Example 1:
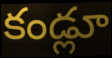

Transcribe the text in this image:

కండ్లూ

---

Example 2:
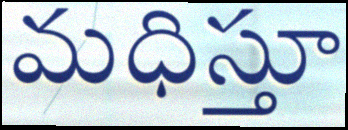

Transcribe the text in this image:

మధిస్తూ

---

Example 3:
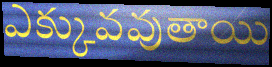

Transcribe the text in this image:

ఎక్కువవుతాయి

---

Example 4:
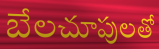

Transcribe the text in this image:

బేలచూపులతో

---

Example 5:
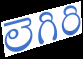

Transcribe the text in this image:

లెగిరి